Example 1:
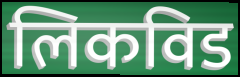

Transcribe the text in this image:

लिकविड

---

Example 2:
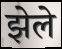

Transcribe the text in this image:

झेले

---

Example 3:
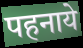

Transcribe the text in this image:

पहनाये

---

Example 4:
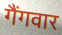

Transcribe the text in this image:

गैंगवार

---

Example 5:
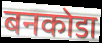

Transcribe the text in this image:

बनकोडा